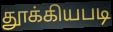
தூக்கியபடி